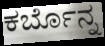
ಕರ್ಬೊನ್ನ